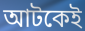
আটকেই